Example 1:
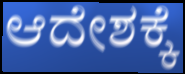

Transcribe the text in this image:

ಆದೇಶಕ್ಕೆ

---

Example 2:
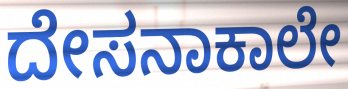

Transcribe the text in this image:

ದೇಸನಾಕಾಲೇ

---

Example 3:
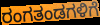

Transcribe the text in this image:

ರಂಗತಂಡಗಳಿಗೆ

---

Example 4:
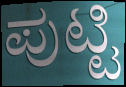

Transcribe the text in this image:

ಪುಟ್ಟಿ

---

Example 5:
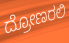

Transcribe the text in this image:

ದ್ರೋಣರಲಿ